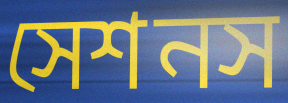
সেশনস